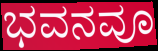
ಭವನವೂ